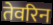
तेवरिन